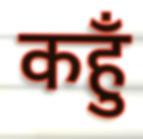
कहुँ